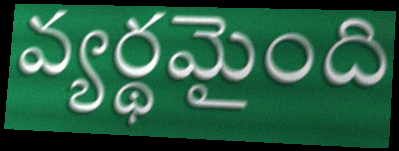
వ్యర్థమైంది